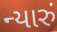
ન્યારું